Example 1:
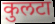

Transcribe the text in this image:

कुलटा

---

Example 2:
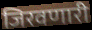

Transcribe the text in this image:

जिरवणारी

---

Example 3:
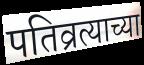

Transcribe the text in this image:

पतिव्रत्याच्या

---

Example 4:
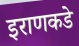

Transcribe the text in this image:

इराणकडे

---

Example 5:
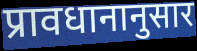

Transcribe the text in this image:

प्रावधानानुसार